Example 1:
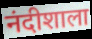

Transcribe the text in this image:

नंदीशाला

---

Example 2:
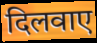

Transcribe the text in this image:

दिलवाए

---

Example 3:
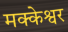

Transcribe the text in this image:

मक्केश्वर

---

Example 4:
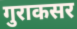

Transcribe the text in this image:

गुराकसर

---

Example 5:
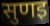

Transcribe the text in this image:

सुणइ